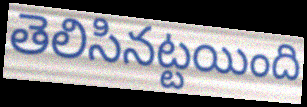
తెలిసినట్టయింది